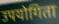
उपयोगिता